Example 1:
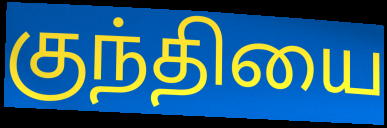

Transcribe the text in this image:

குந்தியை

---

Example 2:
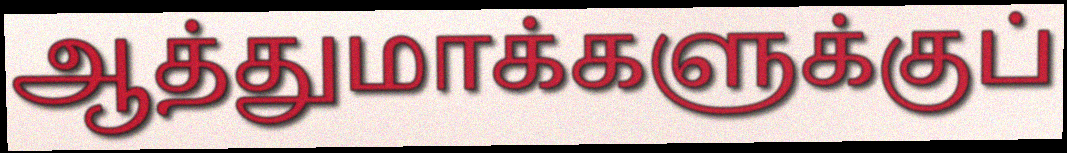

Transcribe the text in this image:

ஆத்துமாக்களுக்குப்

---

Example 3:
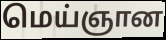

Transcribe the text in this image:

மெய்ஞான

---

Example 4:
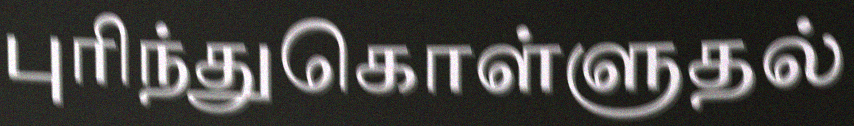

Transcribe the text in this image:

புரிந்துகொள்ளுதல்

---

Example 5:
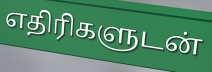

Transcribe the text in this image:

எதிரிகளுடன்